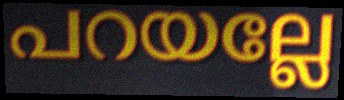
പറയല്ലേ